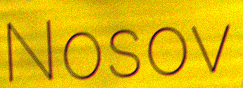
Nosov